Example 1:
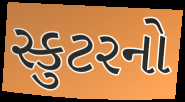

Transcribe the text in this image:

સ્કુટરનો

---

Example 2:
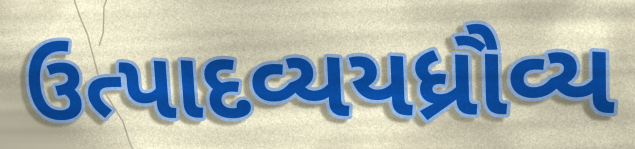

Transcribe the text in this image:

ઉત્પાદવ્યયધ્રૌવ્ય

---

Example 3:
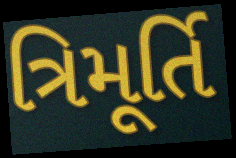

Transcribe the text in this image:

ત્રિમૂર્તિ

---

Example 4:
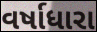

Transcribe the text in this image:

વર્ષાધારા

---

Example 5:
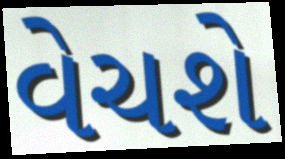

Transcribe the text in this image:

વેચશે